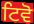
ਟਿਵੋ